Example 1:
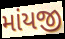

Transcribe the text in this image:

માંયજી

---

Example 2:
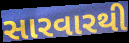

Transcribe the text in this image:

સારવારથી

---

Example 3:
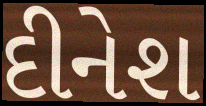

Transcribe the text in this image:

દીનેશ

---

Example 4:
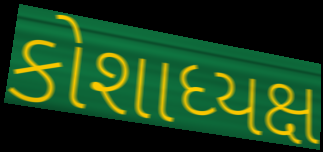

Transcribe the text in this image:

કોશાધ્યક્ષ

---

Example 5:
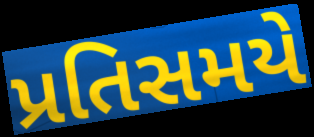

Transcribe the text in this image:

પ્રતિસમયે